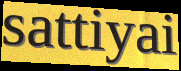
sattiyai